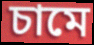
চামে